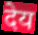
देय